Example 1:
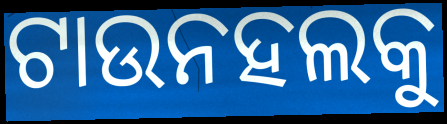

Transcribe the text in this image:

ଟାଉନହଲକୁ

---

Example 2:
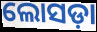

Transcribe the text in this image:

ଲୋସଡ଼ା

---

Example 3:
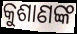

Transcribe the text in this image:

କୁଶାଣଙ୍କ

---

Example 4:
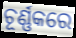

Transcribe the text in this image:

ଚୂର୍ଣ୍ଣକରେ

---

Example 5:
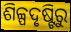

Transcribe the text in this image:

ଶିଳ୍ପଦୃଷ୍ଟିରୁ